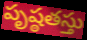
పృష్ఠతస్తు